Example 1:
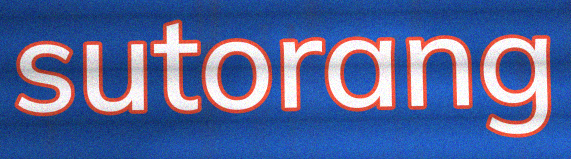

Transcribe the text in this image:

sutorang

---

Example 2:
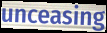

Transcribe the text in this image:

unceasing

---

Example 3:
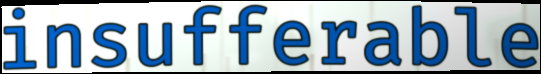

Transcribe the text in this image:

insufferable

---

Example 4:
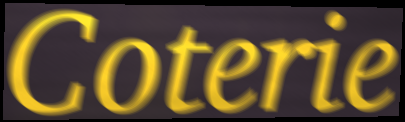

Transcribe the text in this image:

Coterie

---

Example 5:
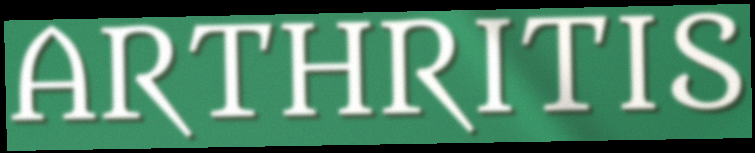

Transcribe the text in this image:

ARTHRITIS